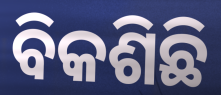
ବିକଶିଛି